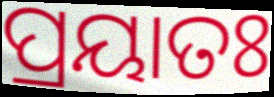
ପ୍ରୟାତଃ